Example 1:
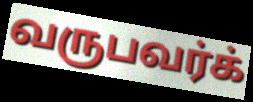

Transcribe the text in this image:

வருபவர்க்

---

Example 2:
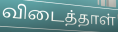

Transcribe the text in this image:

விடைத்தாள்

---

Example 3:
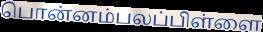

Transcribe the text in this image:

பொன்னம்பலப்பிள்ளை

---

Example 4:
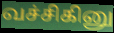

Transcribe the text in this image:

வச்சிகினு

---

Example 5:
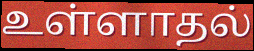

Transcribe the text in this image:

உள்ளாதல்